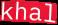
khal